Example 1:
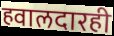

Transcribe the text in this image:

हवालदारही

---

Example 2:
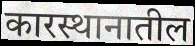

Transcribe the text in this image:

कारस्थानातील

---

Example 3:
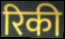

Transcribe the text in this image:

रिकी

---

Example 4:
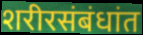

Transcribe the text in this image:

शरीरसंबंधांत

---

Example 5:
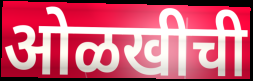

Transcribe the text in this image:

ओळखीची